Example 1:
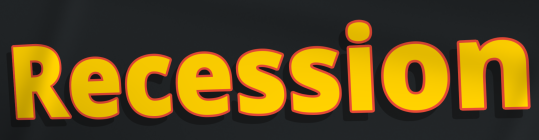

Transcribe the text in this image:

Recession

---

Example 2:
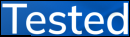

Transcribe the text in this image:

Tested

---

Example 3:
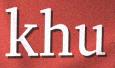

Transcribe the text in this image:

khu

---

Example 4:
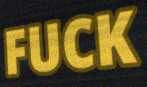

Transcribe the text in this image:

FUCK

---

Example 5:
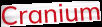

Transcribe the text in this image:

Cranium